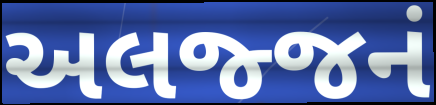
અલજ્જનં